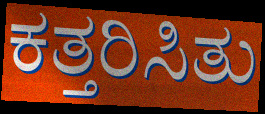
ಕತ್ತರಿಸಿತು